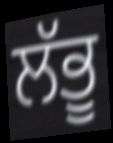
ਲੱਭੂ